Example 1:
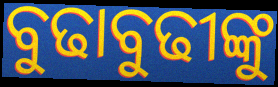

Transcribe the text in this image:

ବୁଢାବୁଢୀଙ୍କୁ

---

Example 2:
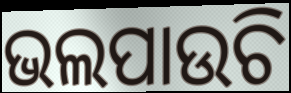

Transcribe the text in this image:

ଭଲପାଉଚି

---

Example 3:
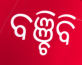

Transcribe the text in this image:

ବଞ୍ଚିବି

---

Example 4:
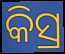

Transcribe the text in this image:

କିସ୍ର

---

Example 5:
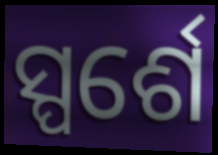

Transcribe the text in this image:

ସ୍ପର୍ଶେ